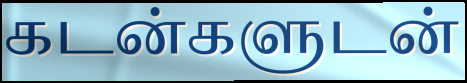
கடன்களுடன்